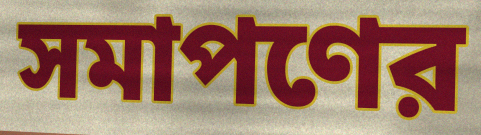
সমাপণের